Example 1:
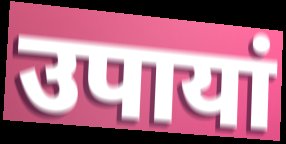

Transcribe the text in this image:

उपायां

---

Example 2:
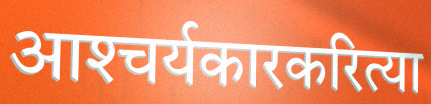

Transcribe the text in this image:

आश्‍चर्यकारकरित्या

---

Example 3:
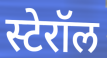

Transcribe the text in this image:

स्टेरॉल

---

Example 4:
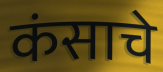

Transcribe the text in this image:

कंसाचे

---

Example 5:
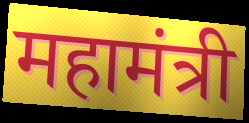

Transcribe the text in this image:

महामंत्री